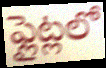
ఫ్లైట్లలో